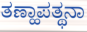
ತಣ್ಹಾಪತ್ಥನಾ